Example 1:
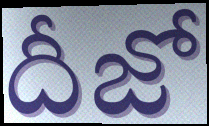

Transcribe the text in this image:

దీజో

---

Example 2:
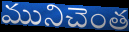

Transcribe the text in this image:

మునిచెంత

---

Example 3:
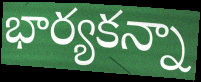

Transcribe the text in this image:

భార్యకన్నా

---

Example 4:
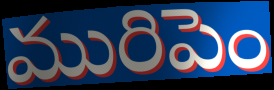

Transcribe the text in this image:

మురిపెం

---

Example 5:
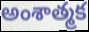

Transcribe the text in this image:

అంశాత్మక